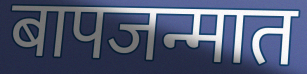
बापजन्मात